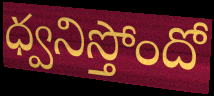
ధ్వనిస్తోందో